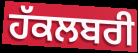
ਹੱਕਲਬਰੀ